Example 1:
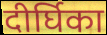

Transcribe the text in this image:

दीर्घिका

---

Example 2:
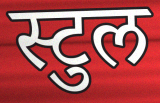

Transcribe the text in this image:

स्टुल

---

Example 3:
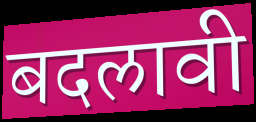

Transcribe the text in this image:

बदलावी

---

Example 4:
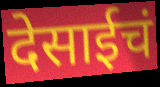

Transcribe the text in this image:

देसाईचं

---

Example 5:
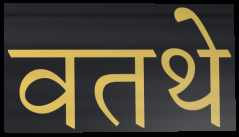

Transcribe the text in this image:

वतथे